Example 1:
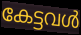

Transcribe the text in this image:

കേട്ടവൾ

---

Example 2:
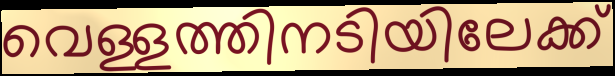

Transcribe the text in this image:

വെള്ളത്തിനടിയിലേക്ക്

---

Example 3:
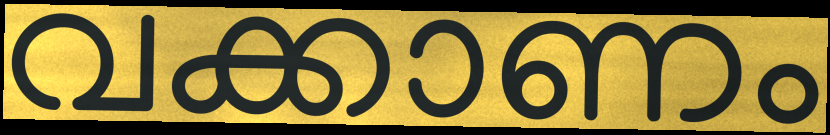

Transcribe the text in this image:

വക്കാണം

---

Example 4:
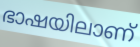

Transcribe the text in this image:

ഭാഷയിലാണ്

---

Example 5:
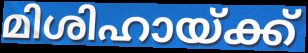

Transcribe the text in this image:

മിശിഹായ്ക്ക്